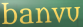
banvu